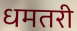
धमतरी